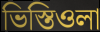
ভিস্তিওলা